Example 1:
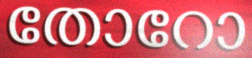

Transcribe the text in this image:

തോറോ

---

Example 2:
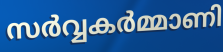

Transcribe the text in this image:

സർവ്വകർമ്മാണി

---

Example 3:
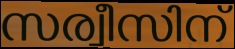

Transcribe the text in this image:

സര്വീസിന്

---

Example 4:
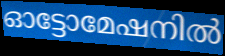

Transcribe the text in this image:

ഓട്ടോമേഷനിൽ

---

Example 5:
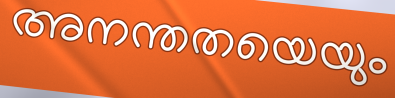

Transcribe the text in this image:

അനന്തതയെയും